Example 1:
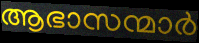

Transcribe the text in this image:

ആഭാസന്മാർ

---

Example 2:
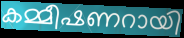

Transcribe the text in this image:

കമ്മീഷണറായി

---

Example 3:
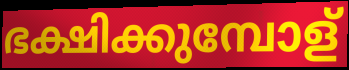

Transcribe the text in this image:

ഭക്ഷിക്കുമ്പോള്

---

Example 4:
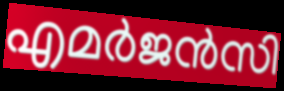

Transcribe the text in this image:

എമർജൻസി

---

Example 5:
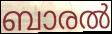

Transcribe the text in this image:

ബാരൽ